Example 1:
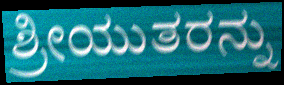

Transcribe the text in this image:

ಶ್ರೀಯುತರನ್ನು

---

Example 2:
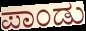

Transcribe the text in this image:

ಪಾಂಡು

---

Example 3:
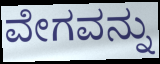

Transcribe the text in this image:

ವೇಗವನ್ನು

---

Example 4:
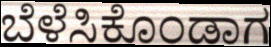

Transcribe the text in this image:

ಬೆಳೆಸಿಕೊಂಡಾಗ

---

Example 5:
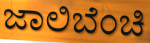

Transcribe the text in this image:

ಜಾಲಿಬೆಂಚಿ